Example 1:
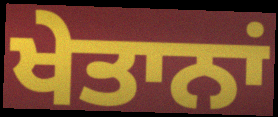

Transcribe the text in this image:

ਖੇਤਾਨਾਂ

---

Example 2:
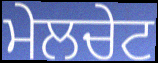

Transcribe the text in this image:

ਮੇਲਚੇਟ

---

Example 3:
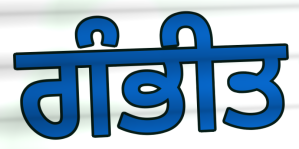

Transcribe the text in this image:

ਗੰਭੀਤ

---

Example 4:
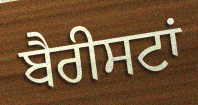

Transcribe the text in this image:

ਬੈਰੀਸਟਾਂ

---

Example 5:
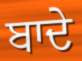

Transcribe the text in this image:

ਬਾਦੇ